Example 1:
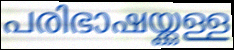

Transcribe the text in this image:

പരിഭാഷയ്ക്കുള്ള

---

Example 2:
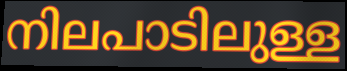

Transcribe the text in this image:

നിലപാടിലുള്ള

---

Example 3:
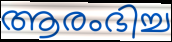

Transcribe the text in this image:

ആരംഭിച്ച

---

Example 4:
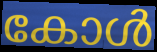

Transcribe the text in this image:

കോൾ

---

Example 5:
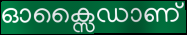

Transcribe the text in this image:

ഓക്സൈഡാണ്